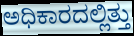
ಅಧಿಕಾರದಲ್ಲಿತ್ತು